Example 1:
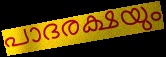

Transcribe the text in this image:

പാദരക്ഷയും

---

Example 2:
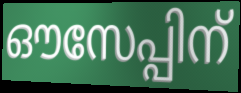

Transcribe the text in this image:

ഔസേപ്പിന്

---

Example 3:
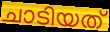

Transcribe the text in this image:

ചാടിയത്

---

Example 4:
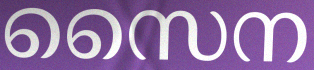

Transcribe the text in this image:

സൈന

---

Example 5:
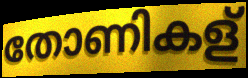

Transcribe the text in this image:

തോണികള്